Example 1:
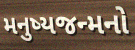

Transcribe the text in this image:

મનુષ્યજન્મનો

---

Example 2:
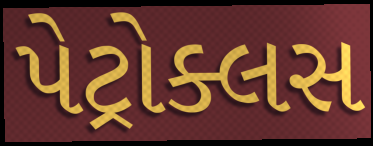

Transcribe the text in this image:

પેટ્રોક્લસ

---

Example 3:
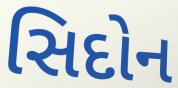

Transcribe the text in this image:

સિદોન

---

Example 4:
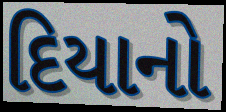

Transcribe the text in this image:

દિયાનો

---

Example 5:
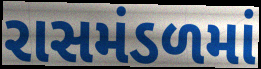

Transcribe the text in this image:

રાસમંડળમાં